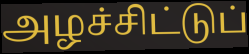
அழச்சிட்டுப்